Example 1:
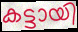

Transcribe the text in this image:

കട്ടായി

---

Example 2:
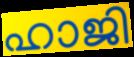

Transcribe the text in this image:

ഹാജി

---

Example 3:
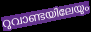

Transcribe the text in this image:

റുവാണ്ടയിലേയും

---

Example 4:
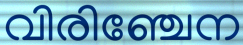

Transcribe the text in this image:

വിരിഞ്ചേന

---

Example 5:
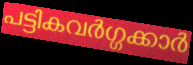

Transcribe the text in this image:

പട്ടികവർഗ്ഗക്കാർ